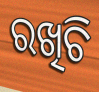
ରଖିଚି